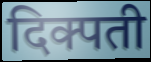
दिक्पती